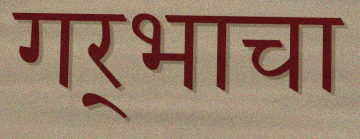
गर्भाचा